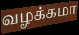
வழக்கமா